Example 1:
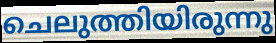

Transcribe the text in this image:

ചെലുത്തിയിരുന്നു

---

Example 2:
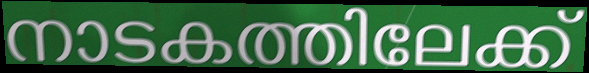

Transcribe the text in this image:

നാടകത്തിലേക്ക്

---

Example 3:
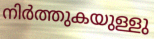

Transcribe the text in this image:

നിർത്തുകയുള്ളു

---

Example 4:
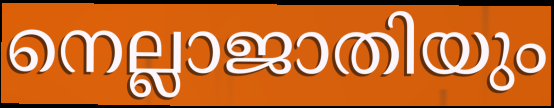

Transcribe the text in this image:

നെല്ലാജാതിയും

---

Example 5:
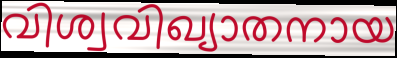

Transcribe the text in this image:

വിശ്വവിഖ്യാതനായ